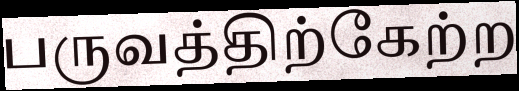
பருவத்திற்கேற்ற